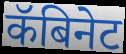
कॅबिनेट